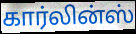
கார்லின்ஸ்